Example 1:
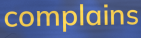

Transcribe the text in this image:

complains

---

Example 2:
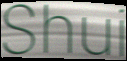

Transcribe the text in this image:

Shui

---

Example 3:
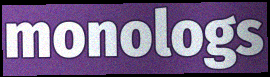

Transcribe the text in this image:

monologs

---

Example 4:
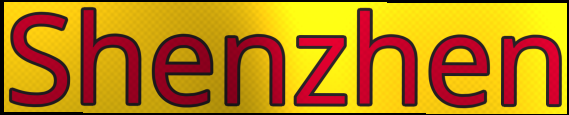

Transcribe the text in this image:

Shenzhen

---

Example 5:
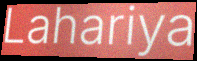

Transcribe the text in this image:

Lahariya